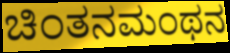
ಚಿಂತನಮಂಥನ